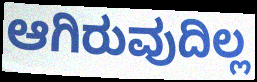
ಆಗಿರುವುದಿಲ್ಲ